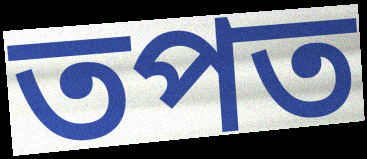
তপত